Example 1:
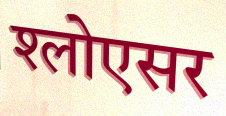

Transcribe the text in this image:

श्लोएसर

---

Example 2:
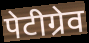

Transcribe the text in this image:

पेटीग्रेव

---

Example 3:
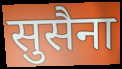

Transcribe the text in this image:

सुसैना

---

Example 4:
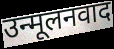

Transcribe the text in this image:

उन्मूलनवाद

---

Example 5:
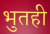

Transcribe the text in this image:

भुतही